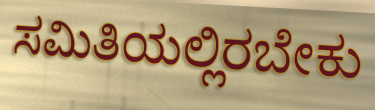
ಸಮಿತಿಯಲ್ಲಿರಬೇಕು